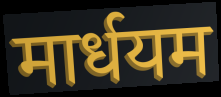
मार्धयम